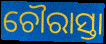
ଚୌରାସ୍ତା